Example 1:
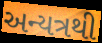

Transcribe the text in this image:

અન્યત્રથી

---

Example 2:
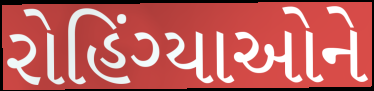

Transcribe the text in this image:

રોહિંગ્યાઓને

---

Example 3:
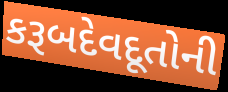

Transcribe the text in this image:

કરૂબદેવદૂતોની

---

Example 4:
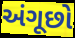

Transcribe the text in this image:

અંગૂછો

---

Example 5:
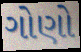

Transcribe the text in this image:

ગોણો